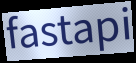
fastapi